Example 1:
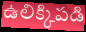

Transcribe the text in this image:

ఉలిక్కిపడి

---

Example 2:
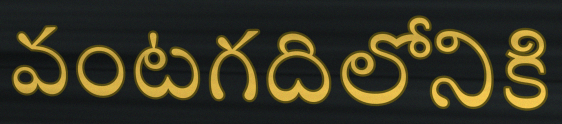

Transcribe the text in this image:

వంటగదిలోనికి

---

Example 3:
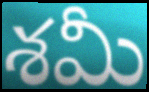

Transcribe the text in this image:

శమీ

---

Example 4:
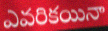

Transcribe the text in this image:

ఎవరికయినా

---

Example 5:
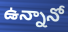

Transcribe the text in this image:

ఉన్నానో